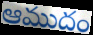
ఆముదం